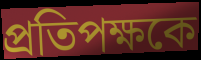
প্রতিপক্ষকে